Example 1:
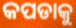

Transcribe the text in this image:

କପଡାକୁ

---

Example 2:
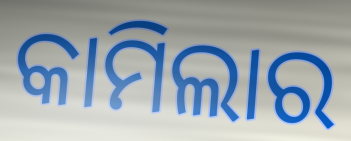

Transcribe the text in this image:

କାମିଲାର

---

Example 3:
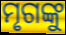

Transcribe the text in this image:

ମୃଗଙ୍କୁ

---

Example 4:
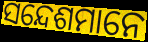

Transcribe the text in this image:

ସନ୍ଦେଶମାନେ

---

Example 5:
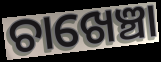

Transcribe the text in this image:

ଚାଖେଞ୍ଚା